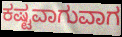
ಕಷ್ಟವಾಗುವಾಗ